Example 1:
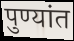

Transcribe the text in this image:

पुण्यांत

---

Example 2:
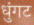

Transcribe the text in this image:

धुंगट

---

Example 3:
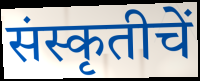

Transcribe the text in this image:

संस्कृतीचें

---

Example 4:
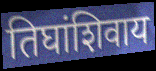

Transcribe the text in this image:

तिघांशिवाय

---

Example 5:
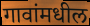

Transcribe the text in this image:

गावांमधील